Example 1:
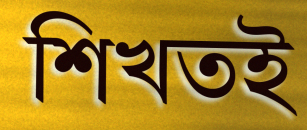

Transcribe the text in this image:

শিখতই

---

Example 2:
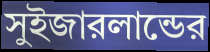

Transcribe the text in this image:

সুইজারলান্ডের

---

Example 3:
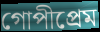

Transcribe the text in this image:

গোপীপ্রেম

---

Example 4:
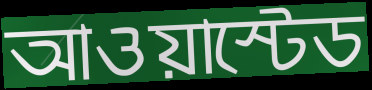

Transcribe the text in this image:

আওয়াস্টেড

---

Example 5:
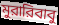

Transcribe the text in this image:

মুরারিবাবু